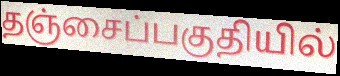
தஞ்சைப்பகுதியில்